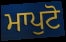
ਮਾਪੁਟੋ